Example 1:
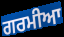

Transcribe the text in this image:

ਗਰਮੀਆ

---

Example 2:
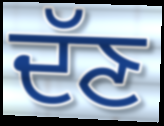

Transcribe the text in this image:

ਦੱਣ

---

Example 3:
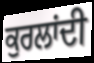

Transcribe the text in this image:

ਕੁਰਲਾਂਦੀ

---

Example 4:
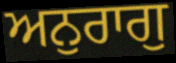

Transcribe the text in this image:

ਅਨੁਰਾਗੁ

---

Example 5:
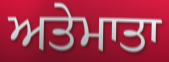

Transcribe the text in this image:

ਅਤੇਮਾਤਾ